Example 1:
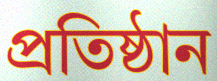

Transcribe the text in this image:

প্রতিষ্ঠান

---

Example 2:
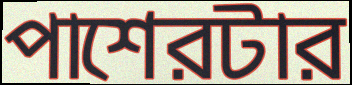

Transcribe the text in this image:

পাশেরটার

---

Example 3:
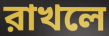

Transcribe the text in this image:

রাখলে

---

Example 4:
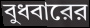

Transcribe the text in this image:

বুধবারের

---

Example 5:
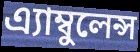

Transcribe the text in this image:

এ্যাম্বুলেন্স